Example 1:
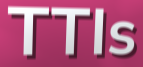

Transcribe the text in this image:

TTIs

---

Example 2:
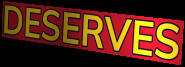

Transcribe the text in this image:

DESERVES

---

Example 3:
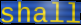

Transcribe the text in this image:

shall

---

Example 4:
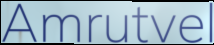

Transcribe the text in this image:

Amrutvel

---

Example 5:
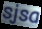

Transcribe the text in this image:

sjsa